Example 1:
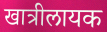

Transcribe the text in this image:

खात्रीलायक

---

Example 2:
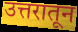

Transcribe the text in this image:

उत्तरातून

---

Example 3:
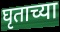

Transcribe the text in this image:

घृताच्या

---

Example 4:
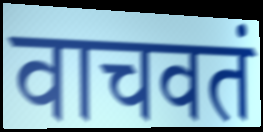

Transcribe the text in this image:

वाचवतं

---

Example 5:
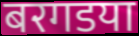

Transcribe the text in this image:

बरगडया